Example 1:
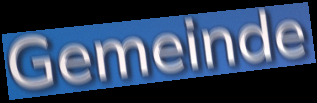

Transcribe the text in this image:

Gemeinde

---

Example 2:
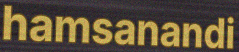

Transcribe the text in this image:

hamsanandi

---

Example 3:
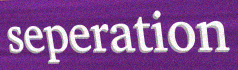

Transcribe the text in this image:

seperation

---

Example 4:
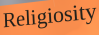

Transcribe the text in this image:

Religiosity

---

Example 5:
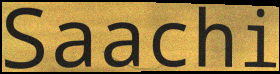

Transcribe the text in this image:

Saachi